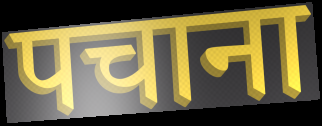
पचाना